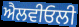
ਐਲਵੀਓਲੀ